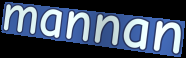
mannan